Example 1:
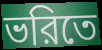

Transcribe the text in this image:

ভরিতে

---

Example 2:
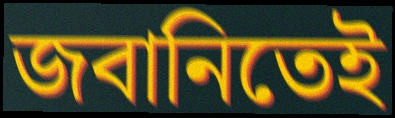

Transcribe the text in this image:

জবানিতেই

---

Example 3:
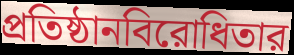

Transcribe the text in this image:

প্রতিষ্ঠানবিরোধিতার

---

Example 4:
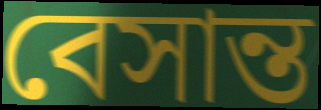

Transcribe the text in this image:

বেসান্ত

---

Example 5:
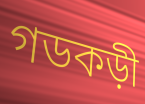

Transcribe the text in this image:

গডকড়ী